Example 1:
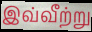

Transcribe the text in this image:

இவ்வீற்று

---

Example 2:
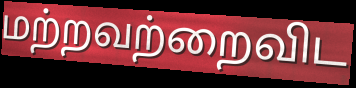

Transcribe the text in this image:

மற்றவற்றைவிட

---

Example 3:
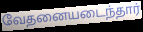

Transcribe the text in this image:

வேதனையடைந்தார்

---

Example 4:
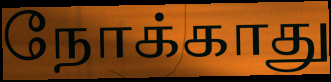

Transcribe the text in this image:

நோக்காது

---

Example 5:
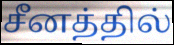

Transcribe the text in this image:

சீனத்தில்